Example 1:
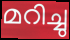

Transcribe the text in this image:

മറിച്ചു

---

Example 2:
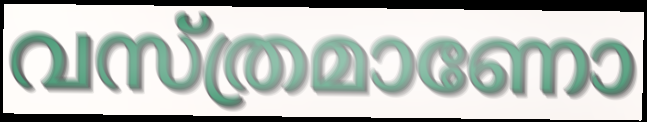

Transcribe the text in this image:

വസ്ത്രമാണോ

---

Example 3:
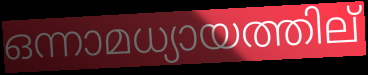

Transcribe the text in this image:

ഒന്നാമധ്യായത്തില്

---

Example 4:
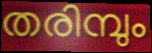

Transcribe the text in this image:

തരിമ്പും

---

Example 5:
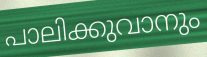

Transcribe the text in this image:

പാലിക്കുവാനും